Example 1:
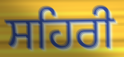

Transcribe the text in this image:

ਸਹਿਰੀ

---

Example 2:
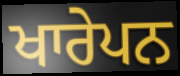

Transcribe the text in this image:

ਖਾਰੇਪਨ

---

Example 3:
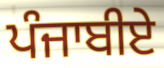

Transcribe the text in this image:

ਪੰਜਾਬੀਏ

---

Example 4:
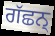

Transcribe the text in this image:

ਗੱਛਨ੍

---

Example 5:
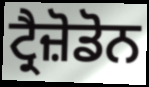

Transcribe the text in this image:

ਟ੍ਰੈਜ਼ੋਡੋਨ